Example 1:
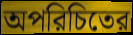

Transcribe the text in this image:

অপরিচিতের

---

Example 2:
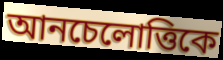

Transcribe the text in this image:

আনচেলোত্তিকে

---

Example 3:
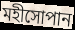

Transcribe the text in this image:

মহীসোপান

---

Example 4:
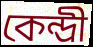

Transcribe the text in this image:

কেন্দ্রী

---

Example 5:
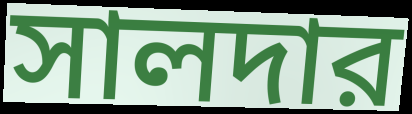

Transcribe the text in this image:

সালদার